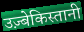
उज़्बेकिस्तानी